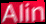
Alin